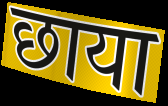
छाया